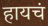
हायचं